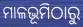
ମାଳଭୂମିଠାରୁ